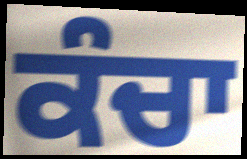
ਕੰਚਾ